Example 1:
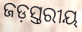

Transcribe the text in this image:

ଜଡ଼ସ୍ତରୀୟ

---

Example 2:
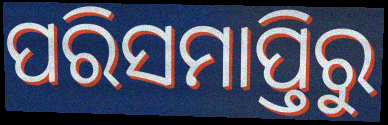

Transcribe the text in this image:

ପରିସମାପ୍ତିରୁ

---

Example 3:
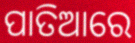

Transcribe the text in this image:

ପାତିଆରେ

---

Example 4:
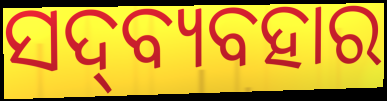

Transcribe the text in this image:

ସଦ୍‍ବ୍ୟବହାର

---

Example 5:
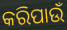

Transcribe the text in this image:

କରିପାଉଁ